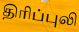
திரிப்புலி